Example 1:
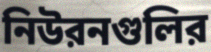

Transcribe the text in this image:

নিউরনগুলির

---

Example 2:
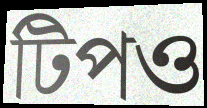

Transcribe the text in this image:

টিপও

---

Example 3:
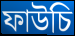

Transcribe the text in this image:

ফাউচি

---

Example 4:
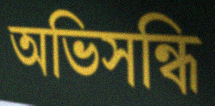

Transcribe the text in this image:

অভিসন্ধি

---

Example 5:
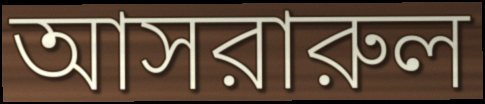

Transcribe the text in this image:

আসরারুল